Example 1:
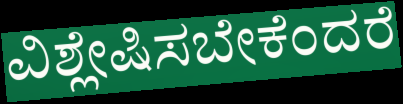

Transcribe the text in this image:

ವಿಶ್ಲೇಷಿಸಬೇಕೆಂದರೆ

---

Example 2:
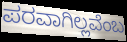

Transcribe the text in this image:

ಪರವಾಗಿಲ್ಲವೆಂಬ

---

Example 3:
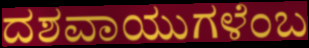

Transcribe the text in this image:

ದಶವಾಯುಗಳೆಂಬ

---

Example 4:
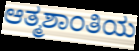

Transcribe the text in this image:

ಆತ್ಮಶಾಂತಿಯ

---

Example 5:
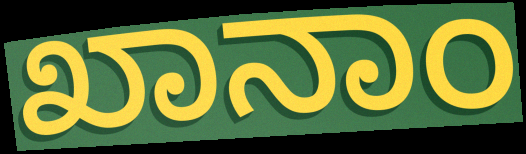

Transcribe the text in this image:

ಖಾನಾಂ